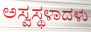
ಅಸ್ವಸ್ಥಳಾದಳು